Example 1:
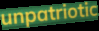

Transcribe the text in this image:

unpatriotic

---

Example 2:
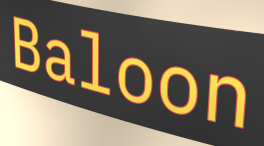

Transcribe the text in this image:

Baloon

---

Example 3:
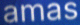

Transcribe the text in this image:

amas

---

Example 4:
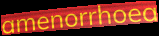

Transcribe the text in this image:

amenorrhoea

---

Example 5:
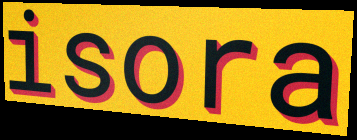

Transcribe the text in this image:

isora